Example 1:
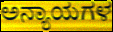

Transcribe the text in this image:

ಅನ್ಯಾಯಗಳ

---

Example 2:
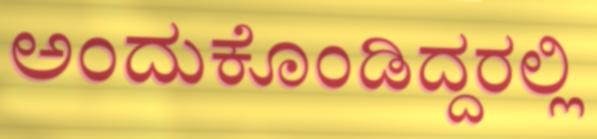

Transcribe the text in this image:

ಅಂದುಕೊಂಡಿದ್ದರಲ್ಲಿ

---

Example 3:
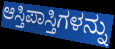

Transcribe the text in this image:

ಆಸ್ತಿಪಾಸ್ತಿಗಳನ್ನು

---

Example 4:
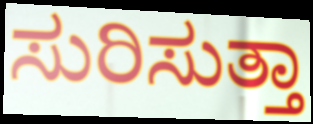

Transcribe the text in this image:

ಸುರಿಸುತ್ತಾ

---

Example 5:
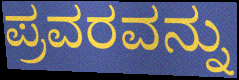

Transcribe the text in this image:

ಪ್ರವರವನ್ನು